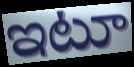
ఇటూ